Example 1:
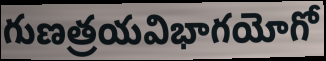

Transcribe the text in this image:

గుణత్రయవిభాగయోగో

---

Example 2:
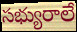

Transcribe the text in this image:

సభ్యురాలే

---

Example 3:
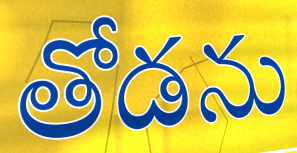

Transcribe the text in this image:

తోడను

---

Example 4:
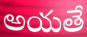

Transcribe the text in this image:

అయతే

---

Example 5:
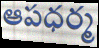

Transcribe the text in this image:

ఆపధర్మ